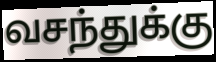
வசந்துக்கு